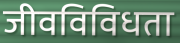
जीवविविधता